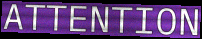
ATTENTION